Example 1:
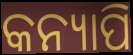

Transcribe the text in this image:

କନ୍ୟାପି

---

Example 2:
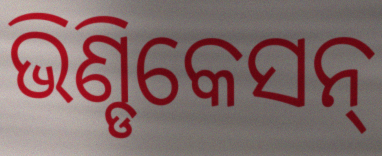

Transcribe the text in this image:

ଭିଣ୍ଡିକେସନ୍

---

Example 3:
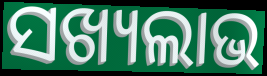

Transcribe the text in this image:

ସଖ୍ୟଲାଭ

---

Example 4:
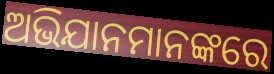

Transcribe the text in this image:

ଅଭିଯାନମାନଙ୍କରେ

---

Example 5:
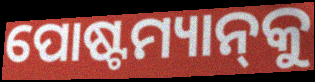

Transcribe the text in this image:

ପୋଷ୍ଟମ୍ୟାନ୍‌କୁ